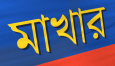
মাখার